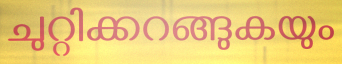
ചുറ്റിക്കറങ്ങുകയും